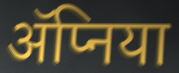
ॲप्निया